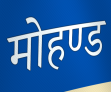
मोहण्ड